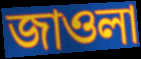
জাওলা